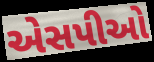
એસપીઓ